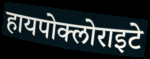
हायपोक्लोराइटे